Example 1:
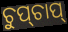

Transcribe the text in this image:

ଚୁପ୍‌ଚାପ୍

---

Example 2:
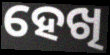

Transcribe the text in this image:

ହେଖି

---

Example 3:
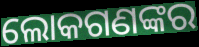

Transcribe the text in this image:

ଲୋକଗଣଙ୍କର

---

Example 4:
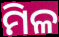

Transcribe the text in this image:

ମିଳ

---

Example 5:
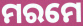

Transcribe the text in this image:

ମରମେ